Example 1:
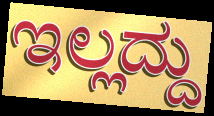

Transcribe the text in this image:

ಇಲ್ಲದ್ದು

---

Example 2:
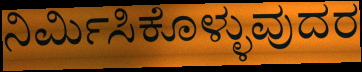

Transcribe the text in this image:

ನಿರ್ಮಿಸಿಕೊಳ್ಳುವುದರ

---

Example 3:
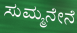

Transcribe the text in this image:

ಸುಮ್ಮನೇನೆ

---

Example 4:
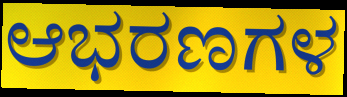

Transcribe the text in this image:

ಆಭರಣಗಳ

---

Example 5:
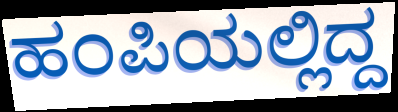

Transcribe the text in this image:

ಹಂಪಿಯಲ್ಲಿದ್ದ